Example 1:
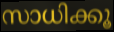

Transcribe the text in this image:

സാധിക്കൂ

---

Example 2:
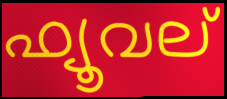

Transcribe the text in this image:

ഫ്യൂവല്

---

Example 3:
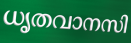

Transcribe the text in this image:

ധൃതവാനസി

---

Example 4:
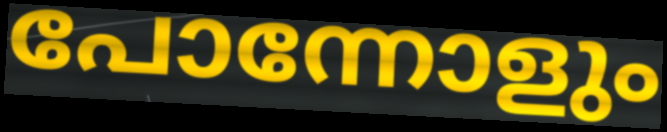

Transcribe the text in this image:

പോന്നോളും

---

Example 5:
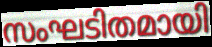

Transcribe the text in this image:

സംഘടിതമായി